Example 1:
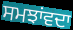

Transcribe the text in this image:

ਸਮਝਾਂਵਦਾ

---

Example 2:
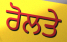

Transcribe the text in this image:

ਰੋਲਤੇ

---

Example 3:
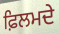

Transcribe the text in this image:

ਫ਼ਿਲਮਦੇ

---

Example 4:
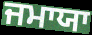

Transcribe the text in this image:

ਜਮਾਯਾ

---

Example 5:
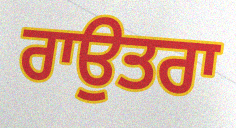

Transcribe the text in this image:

ਰਾਉਤਰਾ